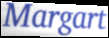
Margart